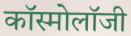
कॉस्मोलॉजी